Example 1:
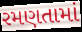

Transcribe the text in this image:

રમણતામાં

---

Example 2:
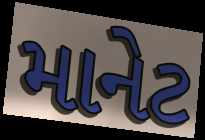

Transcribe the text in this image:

માનેટ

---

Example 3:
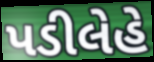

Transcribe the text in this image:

પડીલેહે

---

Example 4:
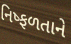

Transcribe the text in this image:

નિષ્ફળતાને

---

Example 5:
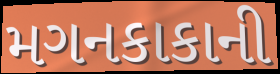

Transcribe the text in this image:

મગનકાકાની